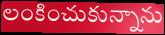
లంకించుకున్నాను